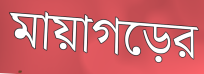
মায়াগড়ের